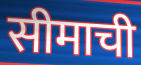
सीमाची